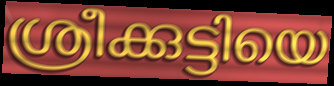
ശ്രീക്കുട്ടിയെ